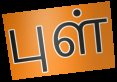
புள்